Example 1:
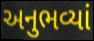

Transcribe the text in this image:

અનુભવ્યાં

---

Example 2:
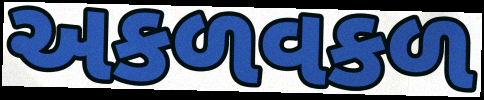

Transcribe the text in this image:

અકળવકળ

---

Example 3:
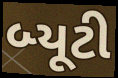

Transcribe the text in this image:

બ્યૂટી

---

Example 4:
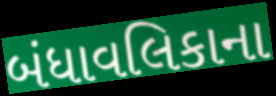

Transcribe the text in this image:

બંધાવલિકાના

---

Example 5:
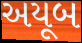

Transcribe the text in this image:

અયૂબ